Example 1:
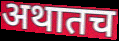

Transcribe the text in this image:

अथातच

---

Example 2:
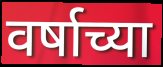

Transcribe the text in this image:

वर्षाच्या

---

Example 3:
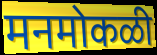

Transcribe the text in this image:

मनमोकळी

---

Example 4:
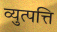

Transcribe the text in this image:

व्युत्पत्ति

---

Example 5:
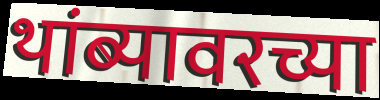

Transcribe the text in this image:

थांब्यावरच्या